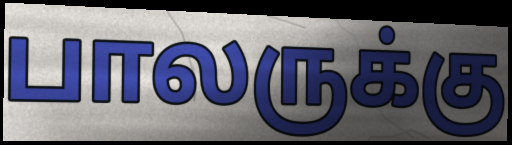
பாலருக்கு